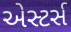
એસ્ટર્સ